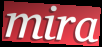
mira